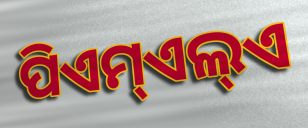
ପିଏମ୍ଏଲ୍ଏ